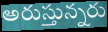
అరుస్తున్నరు